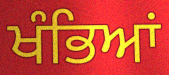
ਖੰਭਿਆਂ